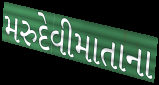
મરુદેવીમાતાના